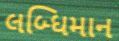
લબ્ધિમાન